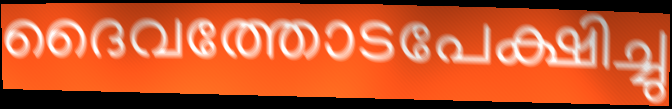
ദൈവത്തോടപേക്ഷിച്ചു